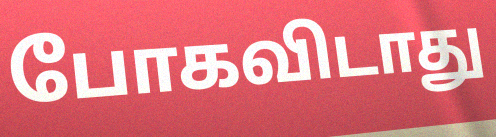
போகவிடாது